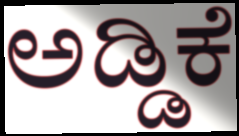
ಅಡ್ಡಿಕೆ